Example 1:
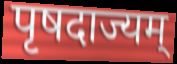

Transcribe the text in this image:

पृषदाज्यम्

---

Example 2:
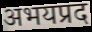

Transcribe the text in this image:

अभयप्रद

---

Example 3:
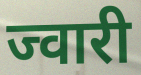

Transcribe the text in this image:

ज्वारी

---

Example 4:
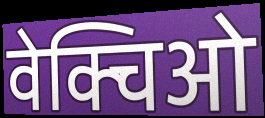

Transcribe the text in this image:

वेक्चिओ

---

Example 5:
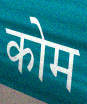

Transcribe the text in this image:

कोम